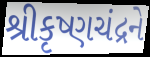
શ્રીકૃષ્ણચંદ્રને